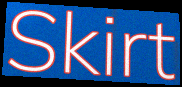
Skirt